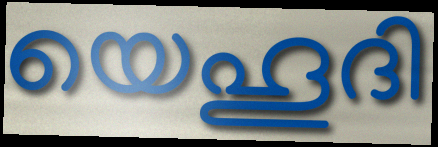
യെഹൂദി